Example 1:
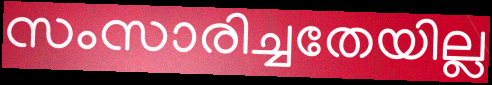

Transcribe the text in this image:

സംസാരിച്ചതേയില്ല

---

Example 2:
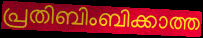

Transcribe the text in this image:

പ്രതിബിംബിക്കാത്ത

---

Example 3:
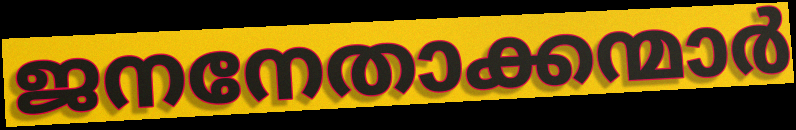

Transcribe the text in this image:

ജനനേതാക്കന്മാർ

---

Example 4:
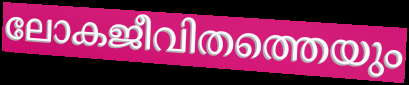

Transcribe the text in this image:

ലോകജീവിതത്തെയും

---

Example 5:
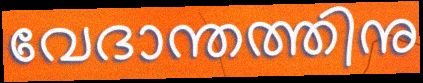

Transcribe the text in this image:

വേദാന്തത്തിനു